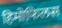
हिमोफिलस